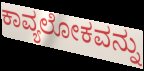
ಕಾವ್ಯಲೋಕವನ್ನು